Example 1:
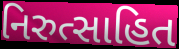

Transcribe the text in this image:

નિરુત્સાહિત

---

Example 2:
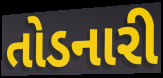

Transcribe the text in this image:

તોડનારી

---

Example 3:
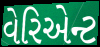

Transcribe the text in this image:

વેરિએન્ટ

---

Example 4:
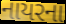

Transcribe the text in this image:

નાયરના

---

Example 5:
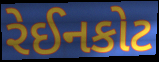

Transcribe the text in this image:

રેઈનકોટ